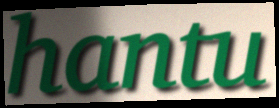
hantu